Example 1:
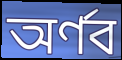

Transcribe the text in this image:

অর্ণব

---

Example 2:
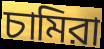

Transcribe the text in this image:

চামিরা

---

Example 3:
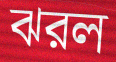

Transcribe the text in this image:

ঝরল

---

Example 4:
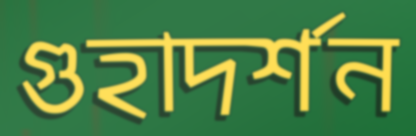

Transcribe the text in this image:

গুহাদর্শন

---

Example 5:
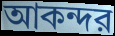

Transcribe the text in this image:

আকন্দর